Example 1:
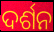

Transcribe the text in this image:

ଦର୍ଶନ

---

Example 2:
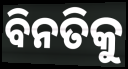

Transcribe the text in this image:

ବିନତିକୁ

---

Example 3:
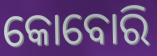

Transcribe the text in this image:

କୋବୋରି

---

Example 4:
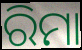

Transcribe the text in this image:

ରିମା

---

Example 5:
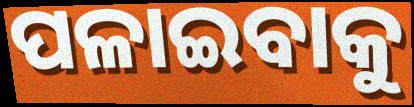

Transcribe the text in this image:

ପଳାଇବାକୁ